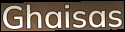
Ghaisas